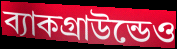
ব্যাকগ্রাউন্ডেও